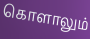
கொளாலும்